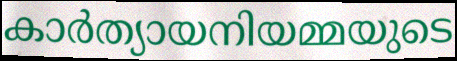
കാർത്യായനിയമ്മയുടെ